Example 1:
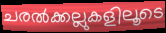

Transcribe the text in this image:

ചരൽക്കല്ലുകളിലൂടെ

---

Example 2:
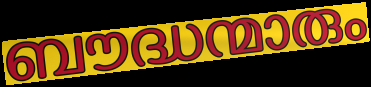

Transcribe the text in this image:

ബൗദ്ധന്മാരും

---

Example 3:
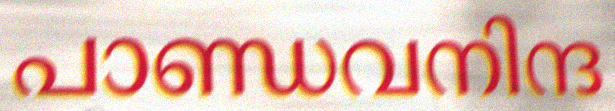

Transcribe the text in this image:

പാണ്ഡവനിന്ദ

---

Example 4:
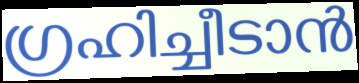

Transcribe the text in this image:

ഗ്രഹിച്ചീടാൻ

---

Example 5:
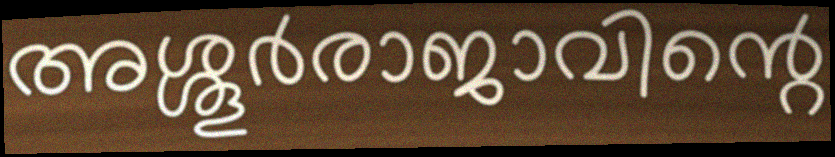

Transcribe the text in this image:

അശ്ശൂർരാജാവിന്റെ